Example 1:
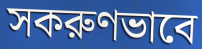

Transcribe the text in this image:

সকরুণভাবে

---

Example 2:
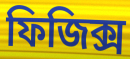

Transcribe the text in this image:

ফিজিক্স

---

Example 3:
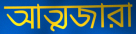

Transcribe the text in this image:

আত্মজারা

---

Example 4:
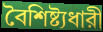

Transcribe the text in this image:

বৈশিষ্ট্যধারী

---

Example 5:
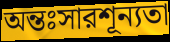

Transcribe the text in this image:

অন্তঃসারশূন্যতা